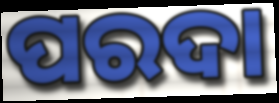
ପରଦା